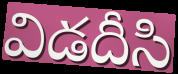
విడదీసి